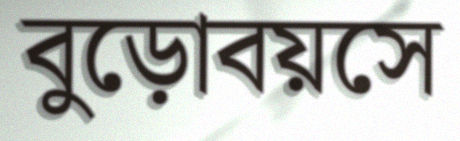
বুড়োবয়সে